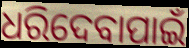
ଧରିଦେବାପାଇଁ